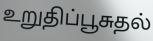
உறுதிப்பூசுதல்